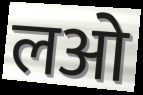
लओ